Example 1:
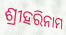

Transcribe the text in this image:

ଶ୍ରୀହରିନାମ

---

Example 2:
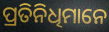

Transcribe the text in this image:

ପ୍ରତିନିଧିମାନେ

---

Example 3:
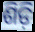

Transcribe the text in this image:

ଶିଡ଼ି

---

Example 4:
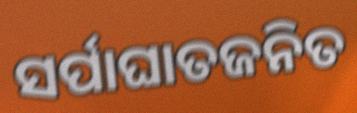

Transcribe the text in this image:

ସର୍ପାଘାତଜନିତ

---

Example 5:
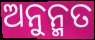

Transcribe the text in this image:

ଅନୁନ୍ମତ